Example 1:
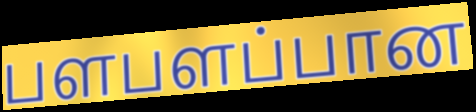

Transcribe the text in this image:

பளபளப்பான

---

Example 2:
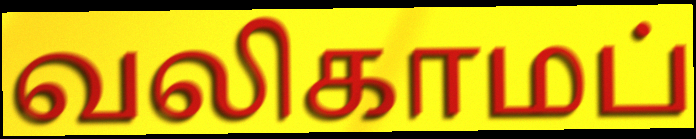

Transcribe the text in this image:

வலிகாமப்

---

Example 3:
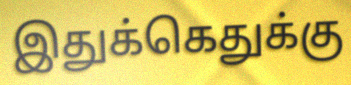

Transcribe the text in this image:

இதுக்கெதுக்கு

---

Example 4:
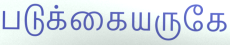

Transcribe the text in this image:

படுக்கையருகே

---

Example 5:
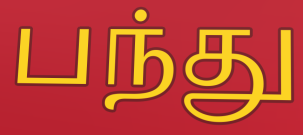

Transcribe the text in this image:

பந்து